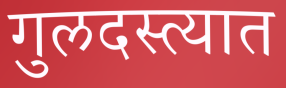
गुलदस्त्यात